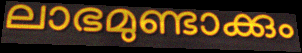
ലാഭമുണ്ടാക്കും